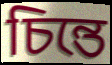
চিন্তে